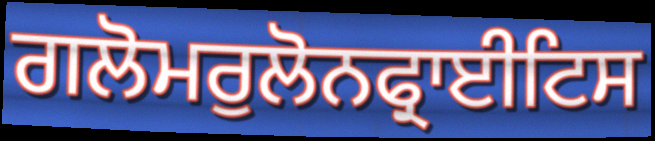
ਗਲੋਮਰੁਲੋਨਫ੍ਰਾਈਟਿਸ